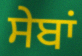
ਸੇਬਾਂ